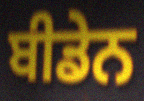
ਬੀਡੇਨ